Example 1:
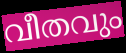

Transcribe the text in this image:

വീതവും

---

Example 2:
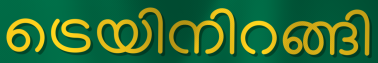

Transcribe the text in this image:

ട്രെയിനിറങ്ങി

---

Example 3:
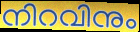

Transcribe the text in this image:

നിറവിനും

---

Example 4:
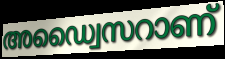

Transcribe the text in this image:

അഡ്വൈസറാണ്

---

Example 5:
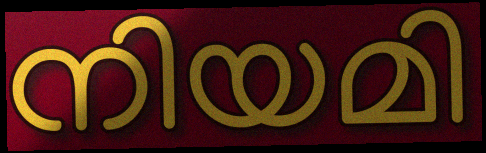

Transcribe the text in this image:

നിയമി